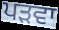
ਪੜਵਾ